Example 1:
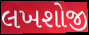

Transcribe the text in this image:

લખશોજી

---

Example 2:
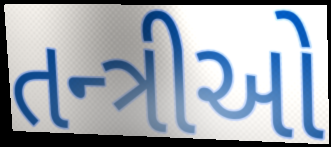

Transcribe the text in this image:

તન્ત્રીઓ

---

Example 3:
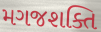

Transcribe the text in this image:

મગજશક્તિ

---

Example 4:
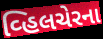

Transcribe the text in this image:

વ્હિલચેરના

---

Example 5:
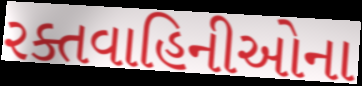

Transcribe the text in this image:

રક્તવાહિનીઓના